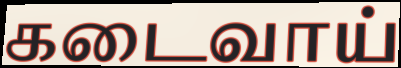
கடைவாய்